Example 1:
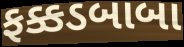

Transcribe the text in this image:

ફક્કડબાબા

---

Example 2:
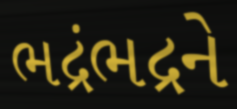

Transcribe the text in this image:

ભદ્રંભદ્રને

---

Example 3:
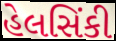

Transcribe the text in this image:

હેલસિંકી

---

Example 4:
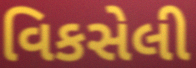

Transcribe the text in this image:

વિકસેલી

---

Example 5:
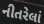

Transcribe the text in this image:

નીતરેલાં